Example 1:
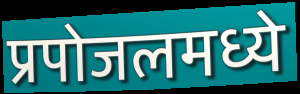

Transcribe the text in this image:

प्रपोजलमध्ये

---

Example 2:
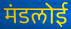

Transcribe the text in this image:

मंडलोई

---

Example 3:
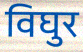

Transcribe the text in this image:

विघुर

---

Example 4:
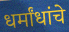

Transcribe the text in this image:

धर्मांधांचे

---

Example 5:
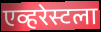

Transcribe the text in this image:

एव्हरेस्टला